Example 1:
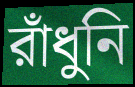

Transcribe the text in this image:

রাঁধুনি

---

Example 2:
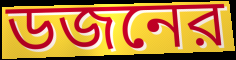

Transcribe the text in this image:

ডজনের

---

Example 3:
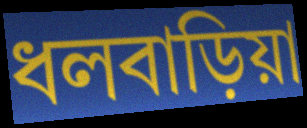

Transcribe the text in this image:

ধলবাড়িয়া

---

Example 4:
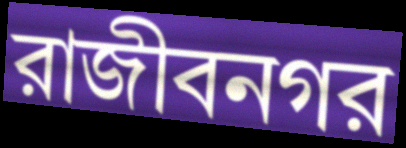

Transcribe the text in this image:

রাজীবনগর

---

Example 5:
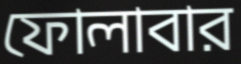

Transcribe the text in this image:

ফোলাবার